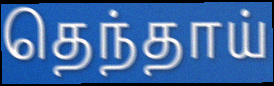
தெந்தாய்